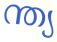
ന്ത്യ